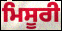
ਮਿਸੂਰੀ